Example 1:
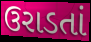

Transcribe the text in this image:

ઉરાડતાં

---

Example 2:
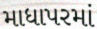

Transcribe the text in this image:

માધાપરમાં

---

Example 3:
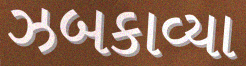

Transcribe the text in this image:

ઝબકાવ્યા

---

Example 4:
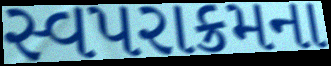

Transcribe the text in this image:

સ્વપરાક્રમના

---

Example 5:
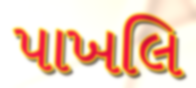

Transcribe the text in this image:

પાખલિ